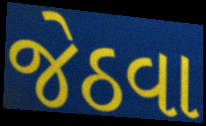
જેઠવા